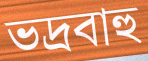
ভদ্রবাহু